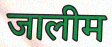
जालीम